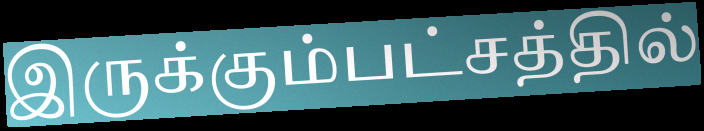
இருக்கும்பட்சத்தில்